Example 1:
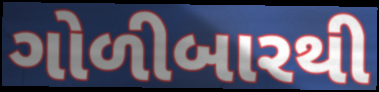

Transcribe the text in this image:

ગોળીબારથી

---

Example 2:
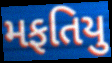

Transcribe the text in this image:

મફતિયુ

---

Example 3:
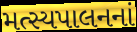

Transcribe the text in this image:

મત્સ્યપાલનનાં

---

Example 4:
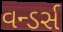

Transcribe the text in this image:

વન્ડર્સ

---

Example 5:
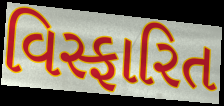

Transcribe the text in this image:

વિસ્ફારિત